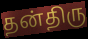
தன்திரு